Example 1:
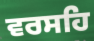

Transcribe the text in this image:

ਵਰਸਹਿ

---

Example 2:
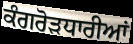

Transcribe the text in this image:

ਕੰਗਰੋੜਧਾਰੀਆਂ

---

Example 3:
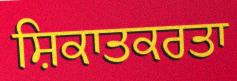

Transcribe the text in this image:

ਸ਼ਿਕਾਤਕਰਤਾ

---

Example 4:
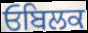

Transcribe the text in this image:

ਓਬਿਲਕ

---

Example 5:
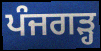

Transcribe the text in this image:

ਪੰਜਗੜ੍ਹ